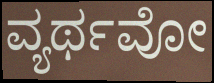
ವ್ಯರ್ಥವೋ